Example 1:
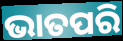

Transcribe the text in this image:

ଭାତପରି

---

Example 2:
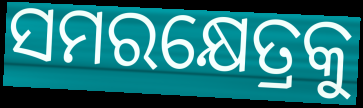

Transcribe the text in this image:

ସମରକ୍ଷେତ୍ରକୁ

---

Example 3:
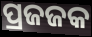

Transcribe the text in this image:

ପ୍ରଜଜକ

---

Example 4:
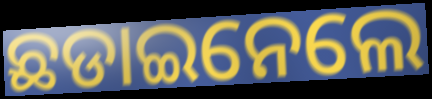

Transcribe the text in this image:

ଛଡାଇନେଲେ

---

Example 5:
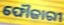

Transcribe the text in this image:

ଫୌଜାରୀ